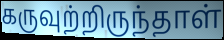
கருவுற்றிருந்தாள்